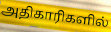
அதிகாரிகளில்